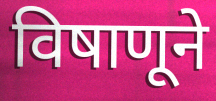
विषाणूने